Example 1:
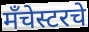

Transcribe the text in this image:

मँचेस्टरचे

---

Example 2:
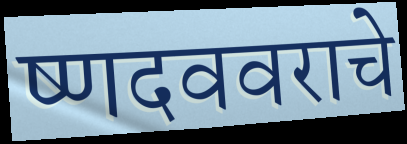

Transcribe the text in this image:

ष्णदववराचे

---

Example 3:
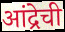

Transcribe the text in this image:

आंद्रेची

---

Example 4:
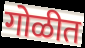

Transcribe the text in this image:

गोळीत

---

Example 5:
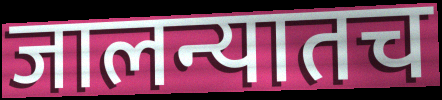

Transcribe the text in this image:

जालन्यातच